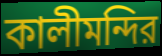
কালীমন্দির